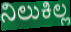
ನಿಲುಕಿಲ್ಲ